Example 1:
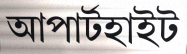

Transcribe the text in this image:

আপাৰ্টহাইট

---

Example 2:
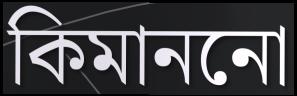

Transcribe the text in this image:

কিমাননো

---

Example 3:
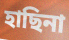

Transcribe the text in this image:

হাছিনা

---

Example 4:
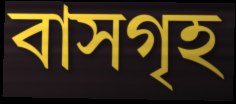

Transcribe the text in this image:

বাসগৃহ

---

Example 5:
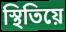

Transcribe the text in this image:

স্থিতিয়ে